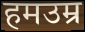
हमउम्र